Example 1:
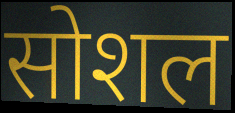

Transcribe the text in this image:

सोशल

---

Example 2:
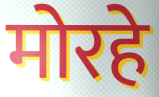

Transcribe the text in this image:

मोरहे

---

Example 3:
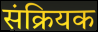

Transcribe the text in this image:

संक्रियक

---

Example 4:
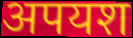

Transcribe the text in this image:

अपयश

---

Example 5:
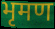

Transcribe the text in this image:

भृमण